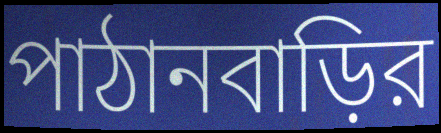
পাঠানবাড়ির